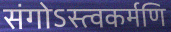
संगोऽस्त्वकर्मणि